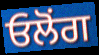
ਓਲੋਂਗ